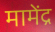
मामेंद्र